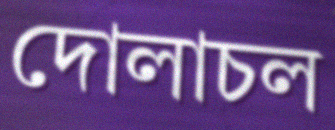
দোলাচল